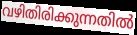
വഴിതിരിക്കുന്നതിൽ